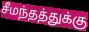
சீமந்தத்துக்கு